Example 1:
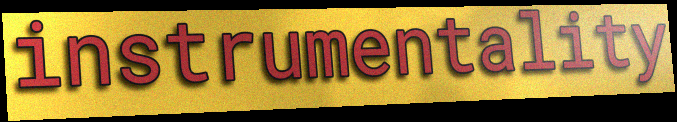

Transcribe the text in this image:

instrumentality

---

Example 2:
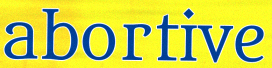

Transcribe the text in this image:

abortive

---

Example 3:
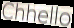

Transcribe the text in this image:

Chhello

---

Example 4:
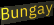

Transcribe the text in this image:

Bungay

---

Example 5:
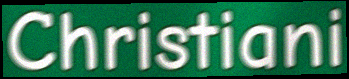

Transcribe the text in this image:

Christiani